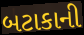
બટાકાની